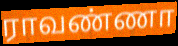
ராவண்ணா